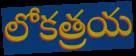
లోకత్రయ